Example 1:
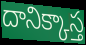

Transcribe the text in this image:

దానిక్కాస్త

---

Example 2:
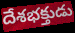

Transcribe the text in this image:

దేశభక్తుడు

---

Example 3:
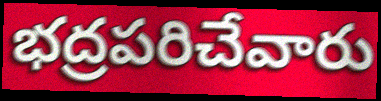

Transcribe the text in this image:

భద్రపరిచేవారు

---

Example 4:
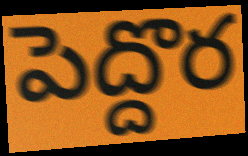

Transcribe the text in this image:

పెద్దొర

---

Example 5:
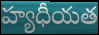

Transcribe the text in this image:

హ్యధీయత